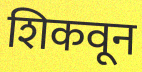
शिकवून